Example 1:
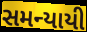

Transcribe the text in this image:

સમન્યાયી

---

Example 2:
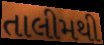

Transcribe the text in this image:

તાલીમથી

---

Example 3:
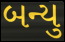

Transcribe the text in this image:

બન્યુ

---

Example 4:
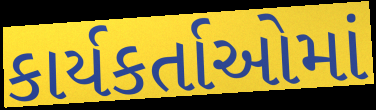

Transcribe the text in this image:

કાર્યકર્તાઓમાં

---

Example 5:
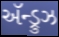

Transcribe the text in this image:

ઍન્ડ્રુઝ